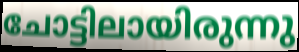
ചോട്ടിലായിരുന്നു